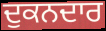
ਦੁਕਨਦਾਰ